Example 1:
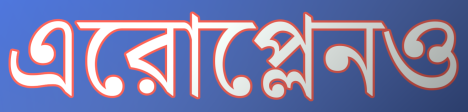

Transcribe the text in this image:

এরোপ্লেনও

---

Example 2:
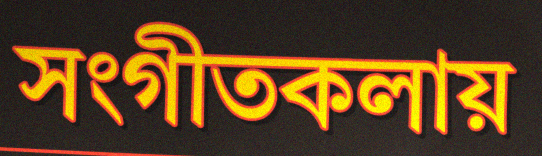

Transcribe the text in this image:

সংগীতকলায়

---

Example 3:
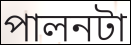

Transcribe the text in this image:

পালনটা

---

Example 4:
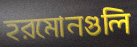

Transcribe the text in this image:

হরমোনগুলি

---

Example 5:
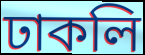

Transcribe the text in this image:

ঢাকলি